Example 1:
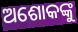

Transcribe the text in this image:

ଅଶୋକଙ୍କୁ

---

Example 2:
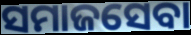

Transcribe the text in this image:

ସମାଜସେବା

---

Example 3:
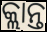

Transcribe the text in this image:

କ୍ଲାନ୍ତ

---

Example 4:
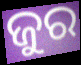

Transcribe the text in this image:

ଜୁର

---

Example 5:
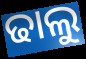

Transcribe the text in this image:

ଢାଲୁ